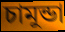
চামুন্ডা